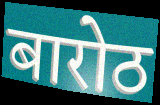
बारोठ